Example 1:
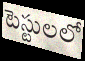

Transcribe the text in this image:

టెస్టులలో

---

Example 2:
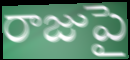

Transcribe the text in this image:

రాజుపై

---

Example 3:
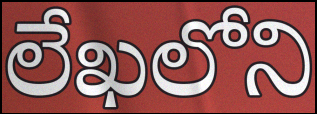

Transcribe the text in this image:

లేఖలోని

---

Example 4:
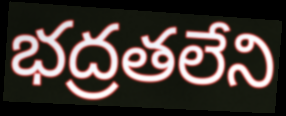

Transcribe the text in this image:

భద్రతలేని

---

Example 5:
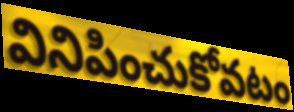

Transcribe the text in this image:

వినిపించుకోవటం